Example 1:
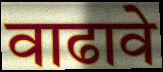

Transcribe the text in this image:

वाढावे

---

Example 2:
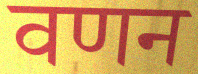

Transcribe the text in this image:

वणन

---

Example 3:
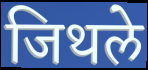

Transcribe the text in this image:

जिथले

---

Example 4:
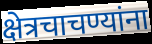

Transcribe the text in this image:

क्षेत्रचाचण्यांना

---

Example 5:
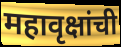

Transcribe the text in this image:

महावृक्षांची